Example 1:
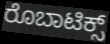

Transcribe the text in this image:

ರೊಬಾಟಿಕ್ಸ್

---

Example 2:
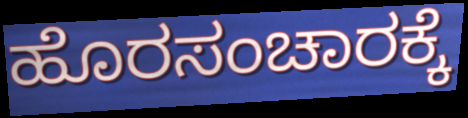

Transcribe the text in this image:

ಹೊರಸಂಚಾರಕ್ಕೆ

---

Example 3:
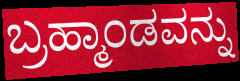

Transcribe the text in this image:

ಬ್ರಹ್ಮಾಂಡವನ್ನು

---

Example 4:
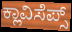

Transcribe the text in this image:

ಕ್ಲಾವಿಸೆಪ್ಸ್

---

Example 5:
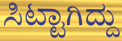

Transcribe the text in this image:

ಸಿಟ್ಟಾಗಿದ್ದು